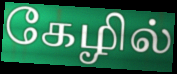
கேழில்